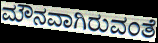
ಮೌನವಾಗಿರುವಂತೆ